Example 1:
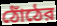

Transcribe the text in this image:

ঠোঁঠের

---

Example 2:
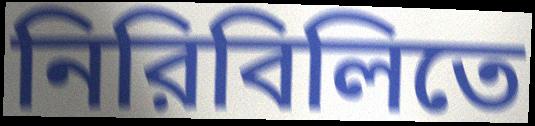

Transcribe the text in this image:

নিরিবিলিতে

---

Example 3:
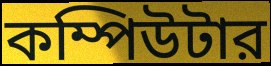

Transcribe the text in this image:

কম্পিউটার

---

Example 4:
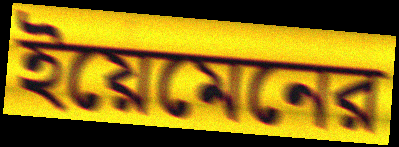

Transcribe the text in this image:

ইয়েমেনের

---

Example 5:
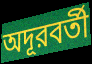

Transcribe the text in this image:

অদূরবর্তী